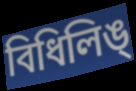
বিধিলিঙ্